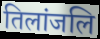
तिलांजलि